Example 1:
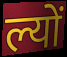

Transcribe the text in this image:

ल्यों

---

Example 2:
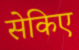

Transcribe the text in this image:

सेकिए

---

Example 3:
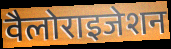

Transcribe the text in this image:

वैलोराइजेशन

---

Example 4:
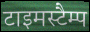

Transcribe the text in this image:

टाइमस्टैम्प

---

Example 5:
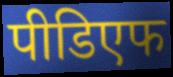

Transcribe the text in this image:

पीडिएफ